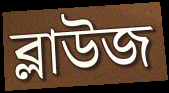
ব্লাউজ